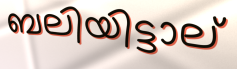
ബലിയിട്ടാല്